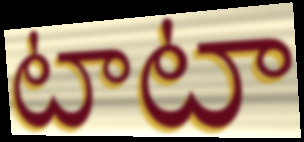
టాటా